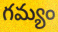
గమ్యం